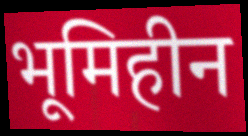
भूमिहीन